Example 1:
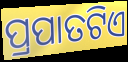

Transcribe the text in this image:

ପ୍ରପାତଟିଏ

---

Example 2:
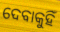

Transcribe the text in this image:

ଦେବାକୁହିଁ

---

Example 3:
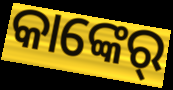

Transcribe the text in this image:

କାଙ୍କେର୍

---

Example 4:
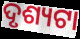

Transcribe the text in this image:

ଦୃଶ୍ୟଟା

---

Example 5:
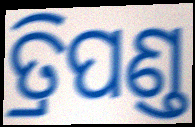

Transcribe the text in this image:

ତ୍ରିପଣ୍ଡ